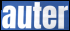
auter